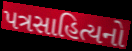
પત્રસાહિત્યનો